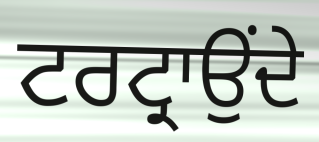
ਟਰਟ੍ਰਾਉਂਦੇ